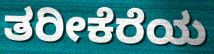
ತರೀಕೆರೆಯ